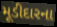
મૂડીદારના